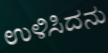
ಉಳಿಸಿದನು